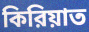
কিরিয়াত